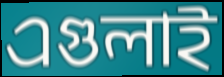
এগুলাই